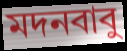
মদনবাবু